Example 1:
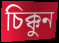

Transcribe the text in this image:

চিক্কুন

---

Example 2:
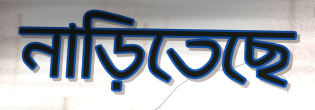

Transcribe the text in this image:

নাড়িতেছে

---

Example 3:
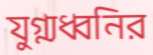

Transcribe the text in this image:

যুগ্মধ্বনির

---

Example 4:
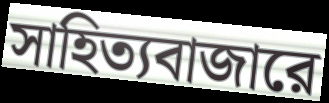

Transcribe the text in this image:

সাহিত্যবাজারে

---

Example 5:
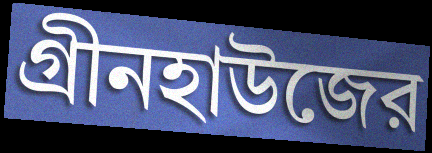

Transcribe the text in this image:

গ্রীনহাউজের